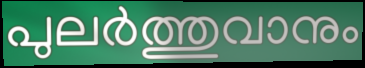
പുലർത്തുവാനും